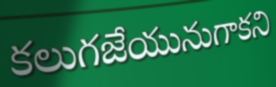
కలుగజేయునుగాకని